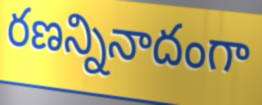
రణన్నినాదంగా